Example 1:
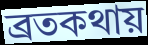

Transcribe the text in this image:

ব্রতকথায়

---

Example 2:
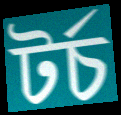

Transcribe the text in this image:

টর্চ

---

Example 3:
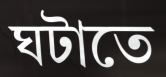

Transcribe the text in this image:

ঘটাতে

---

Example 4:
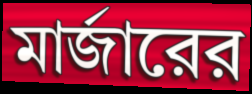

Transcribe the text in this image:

মার্জারের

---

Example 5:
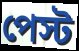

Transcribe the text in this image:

পেস্ট